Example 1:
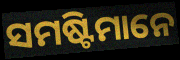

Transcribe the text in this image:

ସମଷ୍ଟିମାନେ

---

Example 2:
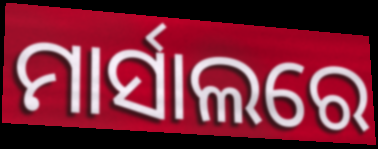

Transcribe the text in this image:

ମାର୍ସାଲରେ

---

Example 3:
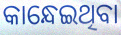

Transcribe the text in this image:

କାନ୍ଧେଇଥିବା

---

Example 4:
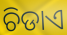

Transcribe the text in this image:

ଚିଡାଏ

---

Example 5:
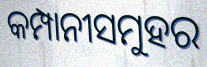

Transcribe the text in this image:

କମ୍ପାନୀସମୁହର